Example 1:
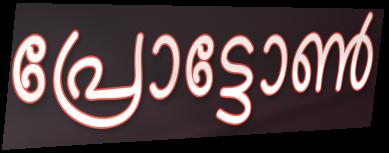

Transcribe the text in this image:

പ്രോട്ടോൺ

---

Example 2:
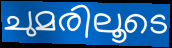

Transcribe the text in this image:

ചുമരിലൂടെ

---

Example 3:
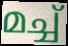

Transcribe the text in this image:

മച്ച്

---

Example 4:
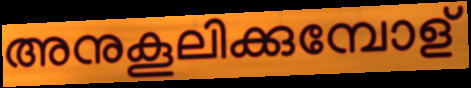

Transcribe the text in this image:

അനുകൂലിക്കുമ്പോള്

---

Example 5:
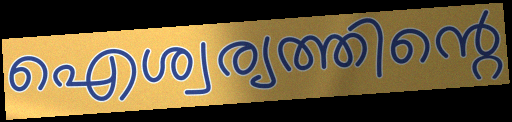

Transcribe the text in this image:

ഐശ്വര്യത്തിന്റെ